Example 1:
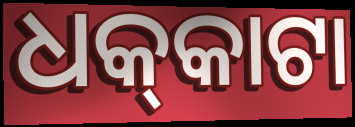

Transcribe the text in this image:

ଧକ୍‌କାଟା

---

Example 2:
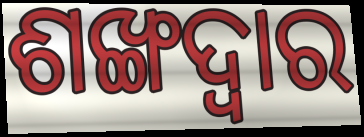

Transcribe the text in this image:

ଶଙ୍ଖଦ୍ୱାର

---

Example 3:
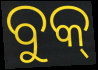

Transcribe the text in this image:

ବୁକ୍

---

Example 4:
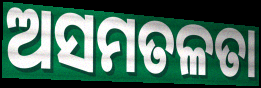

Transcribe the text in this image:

ଅସମତଳତା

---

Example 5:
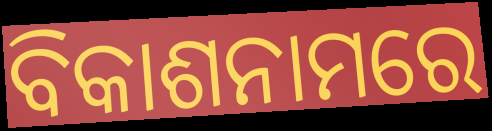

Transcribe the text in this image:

ବିକାଶନାମରେ